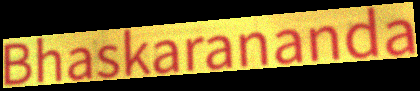
Bhaskarananda